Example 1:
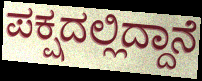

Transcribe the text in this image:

ಪಕ್ಷದಲ್ಲಿದ್ದಾನೆ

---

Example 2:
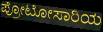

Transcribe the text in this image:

ಪ್ರೋಟೋಸಾರಿಯ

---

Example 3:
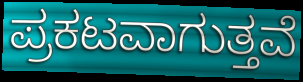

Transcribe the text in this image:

ಪ್ರಕಟವಾಗುತ್ತವೆ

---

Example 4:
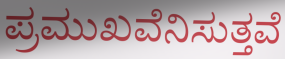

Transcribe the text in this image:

ಪ್ರಮುಖವೆನಿಸುತ್ತವೆ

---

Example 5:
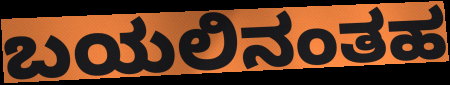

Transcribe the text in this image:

ಬಯಲಿನಂತಹ